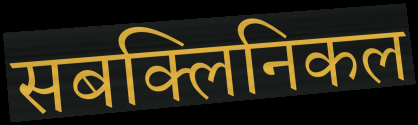
सबक्लिनिकल